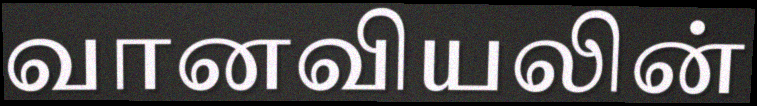
வானவியலின்